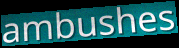
ambushes